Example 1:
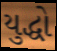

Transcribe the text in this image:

યુદ્ધો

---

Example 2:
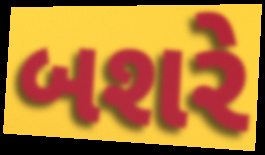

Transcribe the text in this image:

બશરે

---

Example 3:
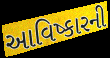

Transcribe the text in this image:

આવિષ્કારની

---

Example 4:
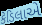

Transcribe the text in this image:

કેડિલાએ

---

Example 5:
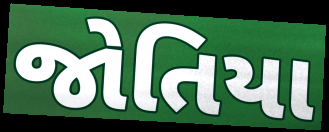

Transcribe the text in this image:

જોતિયા